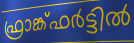
ഫ്രാങ്ക്ഫർട്ടിൽ